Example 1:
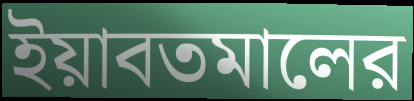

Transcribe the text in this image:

ইয়াবতমালের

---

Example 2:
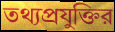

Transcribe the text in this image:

তথ্যপ্রযুক্তির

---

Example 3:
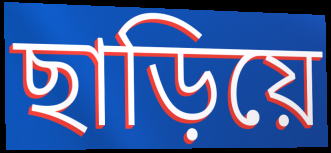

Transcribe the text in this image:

ছাড়িয়ে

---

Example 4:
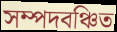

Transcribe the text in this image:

সম্পদবঞ্চিত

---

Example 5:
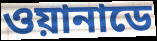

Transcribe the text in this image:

ওয়ানাডে